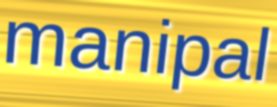
manipal